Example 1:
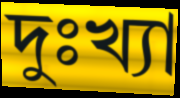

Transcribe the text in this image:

দুঃখ্যা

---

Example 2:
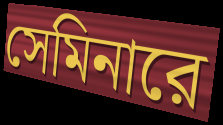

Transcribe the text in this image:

সেমিনারে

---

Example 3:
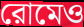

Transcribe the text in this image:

রোমেও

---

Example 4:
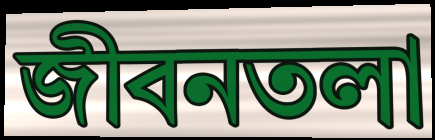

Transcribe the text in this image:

জীবনতলা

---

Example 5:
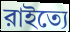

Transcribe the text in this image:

রাইত্যে